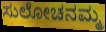
ಸುಲೋಚನಮ್ಮ